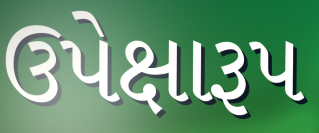
ઉપેક્ષારૂપ